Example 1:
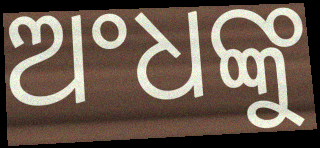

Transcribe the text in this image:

ଅଂଧଙ୍କୁ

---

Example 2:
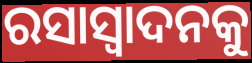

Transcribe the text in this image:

ରସାସ୍ୱାଦନକୁ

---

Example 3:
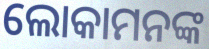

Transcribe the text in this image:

ଲୋକାମନଙ୍କ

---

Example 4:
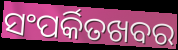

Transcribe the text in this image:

ସଂପର୍କିତଖବର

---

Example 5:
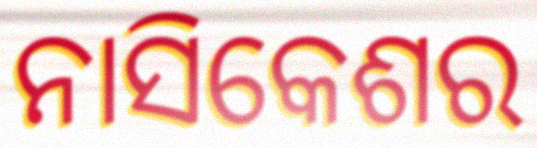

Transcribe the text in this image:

ନାସିକେଶର